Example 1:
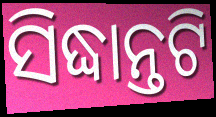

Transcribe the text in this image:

ସିଦ୍ଧାନ୍ତଟି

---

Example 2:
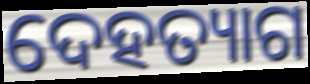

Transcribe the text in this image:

ଦେହତ୍ୟାଗ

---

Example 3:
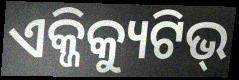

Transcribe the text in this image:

ଏକ୍ଜିକ୍ୟୁଟିଭ୍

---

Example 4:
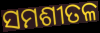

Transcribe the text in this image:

ସମଶୀତଳ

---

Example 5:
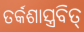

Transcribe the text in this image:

ତର୍କଶାସ୍ତ୍ରବିତ୍